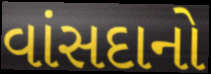
વાંસદાનો